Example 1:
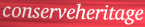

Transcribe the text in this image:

conserveheritage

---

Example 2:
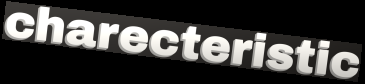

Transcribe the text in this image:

charecteristic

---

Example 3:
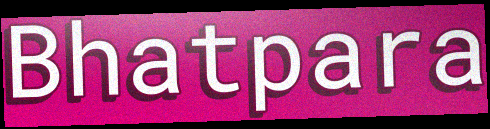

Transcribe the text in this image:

Bhatpara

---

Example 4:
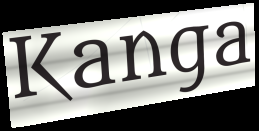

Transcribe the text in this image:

Kanga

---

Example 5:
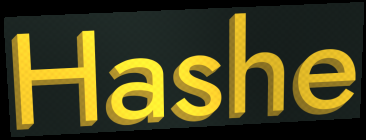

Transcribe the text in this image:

Hashe